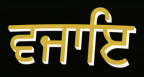
ਵਜਾਇ